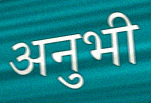
अनुभी